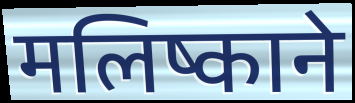
मलिष्काने